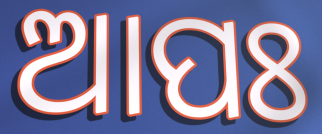
ଆପଃ